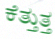
ಕೆತ್ತುತ್ತ